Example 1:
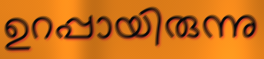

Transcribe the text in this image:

ഉറപ്പായിരുന്നു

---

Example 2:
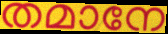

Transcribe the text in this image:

തമാനേ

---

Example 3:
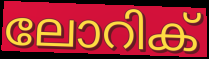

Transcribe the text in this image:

ലോറിക്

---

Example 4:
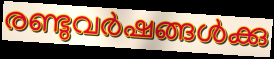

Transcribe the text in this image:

രണ്ടുവർഷങ്ങൾക്കു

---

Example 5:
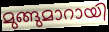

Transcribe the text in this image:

മുങ്ങുമാറായി